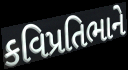
કવિપ્રતિભાને